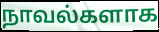
நாவல்களாக